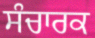
ਸੰਚਾਰਕ